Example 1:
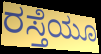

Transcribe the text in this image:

ರಸ್ತೆಯೂ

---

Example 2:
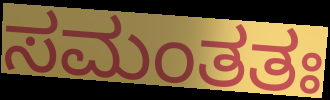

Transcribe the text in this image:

ಸಮಂತತಃ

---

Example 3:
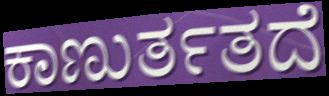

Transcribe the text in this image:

ಕಾಣುರ್ತತದೆ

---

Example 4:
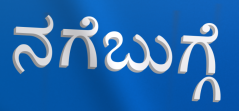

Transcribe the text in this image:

ನಗೆಬುಗ್ಗೆ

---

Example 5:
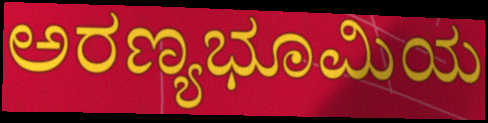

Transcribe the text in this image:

ಅರಣ್ಯಭೂಮಿಯ